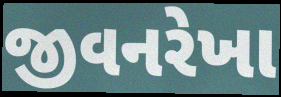
જીવનરેખા